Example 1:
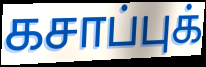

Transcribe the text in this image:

கசாப்புக்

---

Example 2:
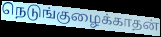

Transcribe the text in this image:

நெடுங்குழைக்காதன்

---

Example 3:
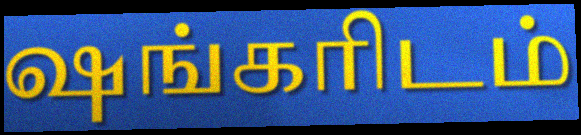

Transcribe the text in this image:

ஷங்கரிடம்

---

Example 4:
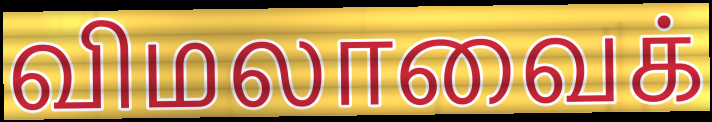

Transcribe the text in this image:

விமலாவைக்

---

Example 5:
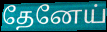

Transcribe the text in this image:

தேனேய்